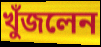
খুঁজলেন